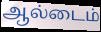
ஆல்டைம்